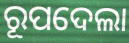
ରୂପଦେଲା